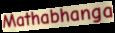
Mathabhanga